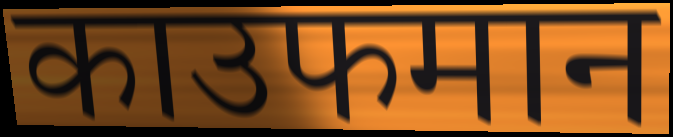
काउफमान